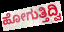
ಹೋಗುತ್ತಿದ್ವಿ